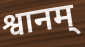
श्वानम्